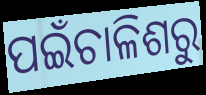
ପଇଁଚାଳିଶରୁ